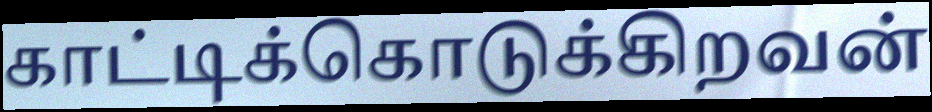
காட்டிக்கொடுக்கிறவன்